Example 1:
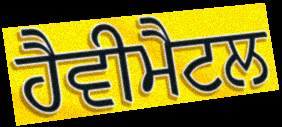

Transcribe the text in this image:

ਹੈਵੀਮੈਟਲ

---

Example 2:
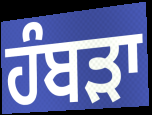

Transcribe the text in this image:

ਹੰਬੜਾ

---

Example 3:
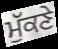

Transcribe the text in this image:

ਮੁੱਕਣੇ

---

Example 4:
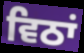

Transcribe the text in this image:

ਵਿਠਾਂ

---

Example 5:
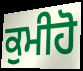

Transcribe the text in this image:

ਕੁਮੀਹੋ